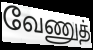
வேணுத்